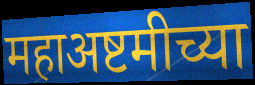
महाअष्टमीच्या